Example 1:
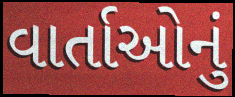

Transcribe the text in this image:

વાર્તાઓનું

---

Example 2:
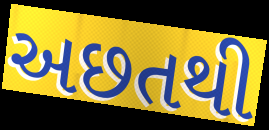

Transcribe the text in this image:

અછતથી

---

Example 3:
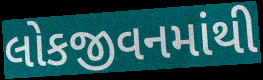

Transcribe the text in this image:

લોકજીવનમાંથી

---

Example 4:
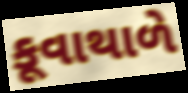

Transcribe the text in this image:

કૂવાથાળે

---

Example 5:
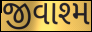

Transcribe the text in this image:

જીવાશ્મ